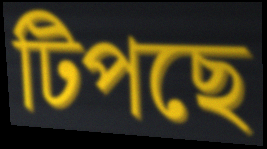
টিপছে